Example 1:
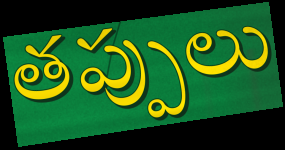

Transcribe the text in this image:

తప్పులు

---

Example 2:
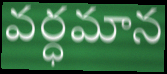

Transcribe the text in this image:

వర్ధమాన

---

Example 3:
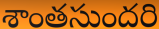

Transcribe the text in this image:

శాంతసుందరి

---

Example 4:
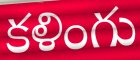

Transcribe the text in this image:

కళింగు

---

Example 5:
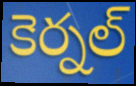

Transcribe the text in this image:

కెర్నల్